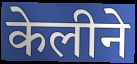
केलीने